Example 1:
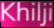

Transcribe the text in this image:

Khilji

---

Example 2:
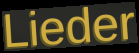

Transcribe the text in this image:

Lieder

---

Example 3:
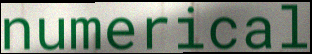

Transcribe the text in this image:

numerical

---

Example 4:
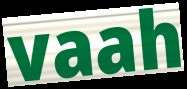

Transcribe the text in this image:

vaah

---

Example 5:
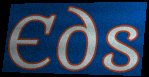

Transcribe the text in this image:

Eds